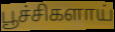
பூச்சிகளாய்